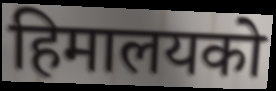
हिमालयको